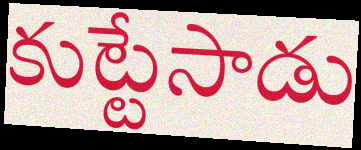
కుట్టేసాడు